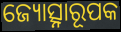
ଜ୍ୟୋତ୍ସ୍ନାରୂପକ